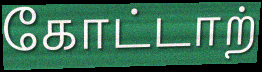
கோட்டாற்